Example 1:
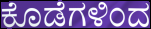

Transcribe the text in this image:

ಕೊಡೆಗಳಿಂದ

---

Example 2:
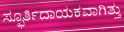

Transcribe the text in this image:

ಸ್ಫೂರ್ತಿದಾಯಕವಾಗಿತ್ತು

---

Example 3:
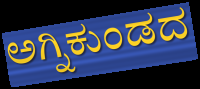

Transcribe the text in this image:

ಅಗ್ನಿಕುಂಡದ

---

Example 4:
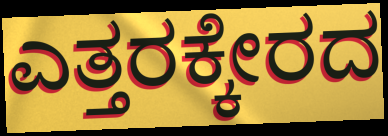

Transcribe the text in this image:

ಎತ್ತರಕ್ಕೇರದ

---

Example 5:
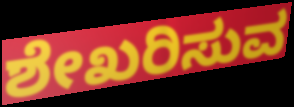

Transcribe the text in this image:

ಶೇಖರಿಸುವ